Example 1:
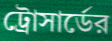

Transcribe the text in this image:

ট্রোসার্ডের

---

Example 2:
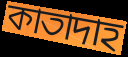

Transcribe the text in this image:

কাতাদাহ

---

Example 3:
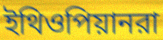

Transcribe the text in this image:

ইথিওপিয়ানরা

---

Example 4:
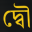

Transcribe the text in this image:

দ্বৌ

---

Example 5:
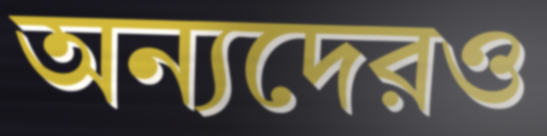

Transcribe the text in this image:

অন্যদেরও